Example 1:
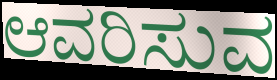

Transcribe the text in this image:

ಆವರಿಸುವ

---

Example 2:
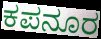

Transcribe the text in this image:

ಕಪನೂರ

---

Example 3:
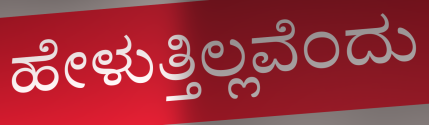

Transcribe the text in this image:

ಹೇಳುತ್ತಿಲ್ಲವೆಂದು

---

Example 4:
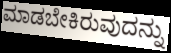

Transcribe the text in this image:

ಮಾಡಬೇಕಿರುವುದನ್ನು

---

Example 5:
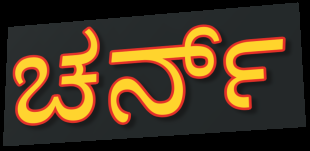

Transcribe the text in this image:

ಚರ್ನ್